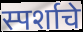
स्पर्शाचे